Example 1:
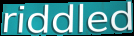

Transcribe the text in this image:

riddled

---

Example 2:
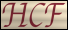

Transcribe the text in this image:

HCF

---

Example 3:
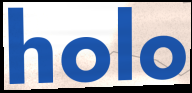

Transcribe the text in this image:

holo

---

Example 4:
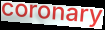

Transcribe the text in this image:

coronary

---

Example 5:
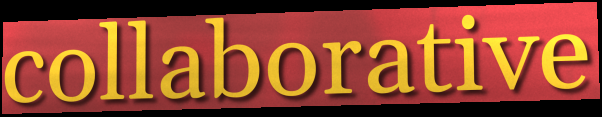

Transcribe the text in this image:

collaborative